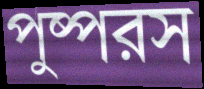
পুষ্পরস